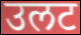
उलट